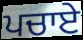
ਪਚਾਏ